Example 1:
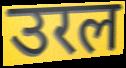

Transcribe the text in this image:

उरल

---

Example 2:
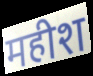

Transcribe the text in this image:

महीश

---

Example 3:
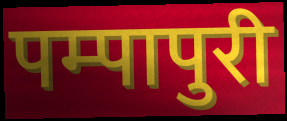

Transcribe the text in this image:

पम्पापुरी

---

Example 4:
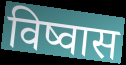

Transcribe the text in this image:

विष्वास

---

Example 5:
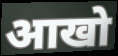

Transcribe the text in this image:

आखो